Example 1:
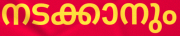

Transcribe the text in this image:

നടക്കാനും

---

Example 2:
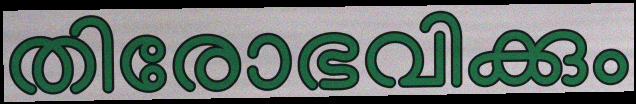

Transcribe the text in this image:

തിരോഭവിക്കും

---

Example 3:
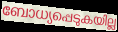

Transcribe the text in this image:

ബോധ്യപ്പെടുകയില്ല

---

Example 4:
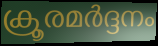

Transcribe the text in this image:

ക്രൂരമർദ്ദനം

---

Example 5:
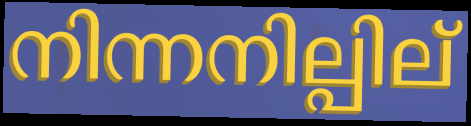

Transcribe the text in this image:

നിന്നനില്പില്